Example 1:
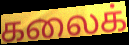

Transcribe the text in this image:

கலைக்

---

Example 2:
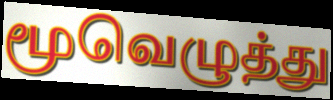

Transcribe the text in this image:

மூவெழுத்து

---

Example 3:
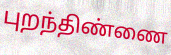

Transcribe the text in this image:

புறந்திண்ணை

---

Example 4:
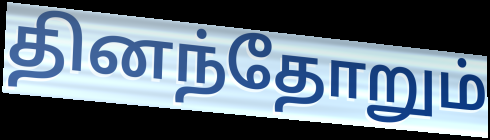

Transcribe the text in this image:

தினந்தோறும்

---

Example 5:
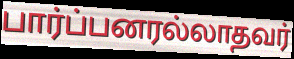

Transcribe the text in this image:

பார்ப்பனரல்லாதவர்